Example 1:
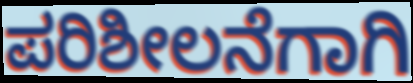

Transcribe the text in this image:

ಪರಿಶೀಲನೆಗಾಗಿ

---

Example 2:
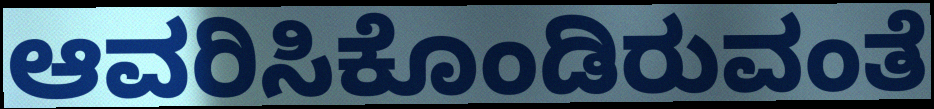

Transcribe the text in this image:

ಆವರಿಸಿಕೊಂಡಿರುವಂತೆ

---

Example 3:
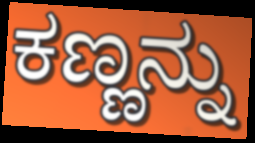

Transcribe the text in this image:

ಕಣ್ಣನ್ನು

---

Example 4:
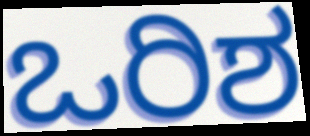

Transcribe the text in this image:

ಒರಿಶ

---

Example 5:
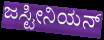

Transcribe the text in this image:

ಜಸ್ಟೀನಿಯನ್